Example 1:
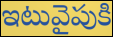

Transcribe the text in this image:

ఇటువైపుకి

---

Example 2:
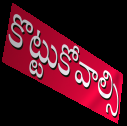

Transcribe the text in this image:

కొట్టుకోవాల్సి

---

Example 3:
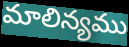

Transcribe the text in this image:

మాలిన్యము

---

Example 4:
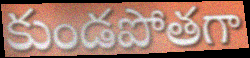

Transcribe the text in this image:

కుండపోతగా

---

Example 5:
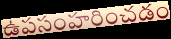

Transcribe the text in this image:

ఉపసంహరించడం